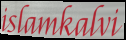
islamkalvi